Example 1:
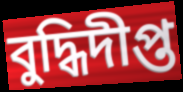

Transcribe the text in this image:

বুদ্ধিদীপ্ত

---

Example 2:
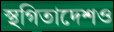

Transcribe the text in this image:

স্থগিতাদেশও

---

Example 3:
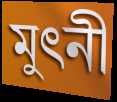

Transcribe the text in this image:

মুৎনী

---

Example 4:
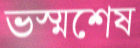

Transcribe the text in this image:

ভস্মশেষ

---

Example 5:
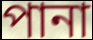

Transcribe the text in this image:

পানা